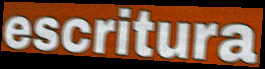
escritura